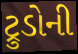
ટ્રુડોની